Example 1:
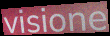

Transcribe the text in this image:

visione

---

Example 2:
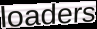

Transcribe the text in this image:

loaders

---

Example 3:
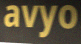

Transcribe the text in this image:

avyo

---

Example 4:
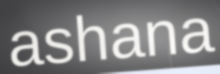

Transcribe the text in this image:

ashana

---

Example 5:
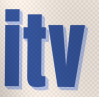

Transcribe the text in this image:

itv